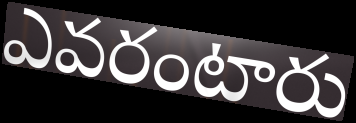
ఎవరంటారు